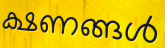
ക്ഷണങ്ങൾ